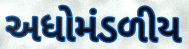
અધોમંડળીય